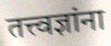
तत्त्वज्ञांना